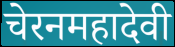
चेरनमहादेवी